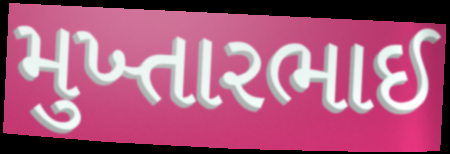
મુખ્તારભાઈ